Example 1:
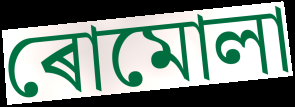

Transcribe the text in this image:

ৰোমোলা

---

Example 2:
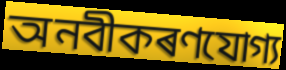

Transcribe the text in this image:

অনবীকৰণযোগ্য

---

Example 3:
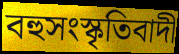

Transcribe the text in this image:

বহুসংস্কৃতিবাদী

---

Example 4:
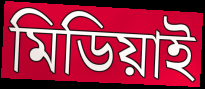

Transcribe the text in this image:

মিডিয়াই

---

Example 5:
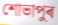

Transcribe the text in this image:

শোভাপুৰ